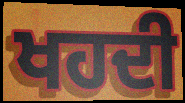
ਖਹਦੀ